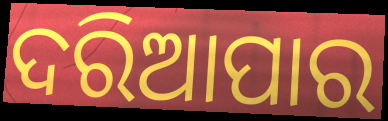
ଦରିଆପାର